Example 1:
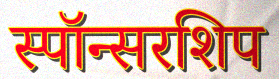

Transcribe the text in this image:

स्पॉन्सरशिप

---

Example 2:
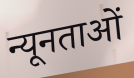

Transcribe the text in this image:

न्यूनताओं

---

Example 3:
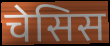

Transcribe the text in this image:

चेसिस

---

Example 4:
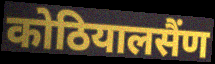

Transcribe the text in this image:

कोठियालसैंण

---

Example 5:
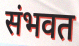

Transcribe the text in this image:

संभवत